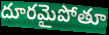
దూరమైపోతూ